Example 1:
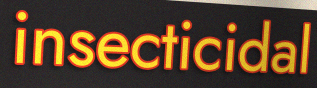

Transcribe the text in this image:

insecticidal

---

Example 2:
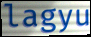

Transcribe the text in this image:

lagyu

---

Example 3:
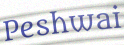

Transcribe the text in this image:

Peshwai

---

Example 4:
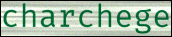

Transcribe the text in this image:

charchege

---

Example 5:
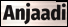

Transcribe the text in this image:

Anjaadi